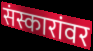
संस्कारांवर